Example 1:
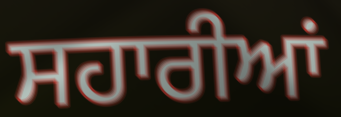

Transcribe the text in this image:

ਸਹਾਰੀਆਂ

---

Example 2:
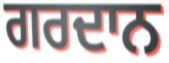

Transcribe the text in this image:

ਗਰਦਾਨ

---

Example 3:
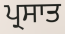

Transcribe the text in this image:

ਪ੍ਰਸਾਤ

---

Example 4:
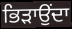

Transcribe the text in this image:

ਭਿੜਾਉਂਦਾ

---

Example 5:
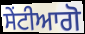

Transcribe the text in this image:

ਸੇਂਟੀਆਗੋ